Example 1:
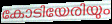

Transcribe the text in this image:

കോടിയേരിയും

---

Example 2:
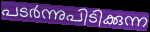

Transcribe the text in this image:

പടർന്നുപിടിക്കുന്ന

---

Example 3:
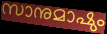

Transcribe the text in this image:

സാനുമാഷും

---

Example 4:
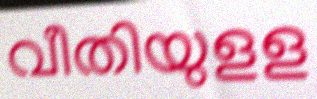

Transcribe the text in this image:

വീതിയുളള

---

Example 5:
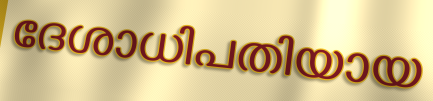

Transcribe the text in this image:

ദേശാധിപതിയായ